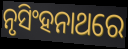
ନୃସିଂହନାଥରେ